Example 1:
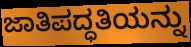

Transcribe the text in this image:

ಜಾತಿಪದ್ಧತಿಯನ್ನು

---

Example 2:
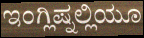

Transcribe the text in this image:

ಇಂಗ್ಲಿಷ್ನಲ್ಲಿಯೂ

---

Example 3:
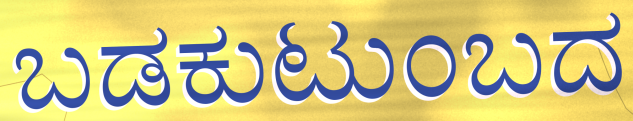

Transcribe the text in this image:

ಬಡಕುಟುಂಬದ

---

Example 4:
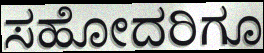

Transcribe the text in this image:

ಸಹೋದರಿಗೂ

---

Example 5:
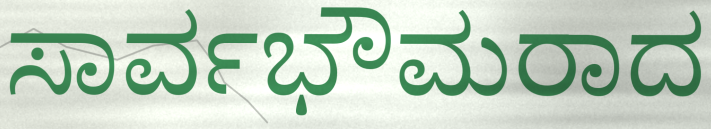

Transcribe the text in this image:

ಸಾರ್ವಭೌಮರಾದ